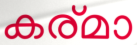
കര്മാ